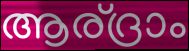
ആര്ദ്രാം